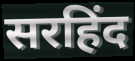
सरहिंद